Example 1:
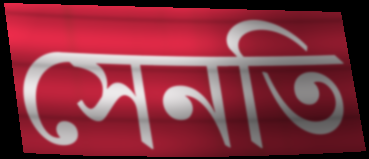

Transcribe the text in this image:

সেনতি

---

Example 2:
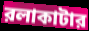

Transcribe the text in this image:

রলাকাটার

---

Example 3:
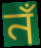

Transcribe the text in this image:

নঁ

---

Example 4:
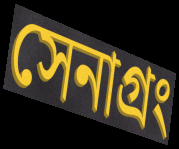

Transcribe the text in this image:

সেনাগ্রং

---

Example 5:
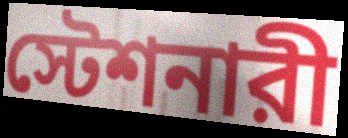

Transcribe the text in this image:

স্টেশনারী